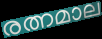
രത്നമാല